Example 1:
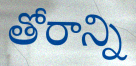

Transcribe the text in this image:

తోరాన్ని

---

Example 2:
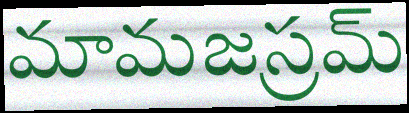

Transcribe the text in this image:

మామజస్రమ్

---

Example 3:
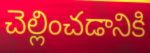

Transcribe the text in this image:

చెల్లించడానికి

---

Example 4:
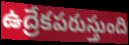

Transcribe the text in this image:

ఉద్రేకపరుస్తుంది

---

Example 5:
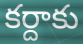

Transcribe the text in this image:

కర్దాకు